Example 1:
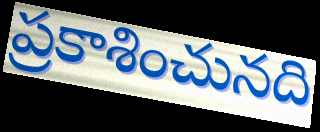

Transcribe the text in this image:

ప్రకాశించునది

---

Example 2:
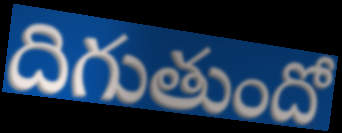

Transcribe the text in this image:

దిగుతుందో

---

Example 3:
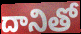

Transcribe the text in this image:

దానితో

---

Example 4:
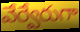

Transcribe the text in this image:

వేర్వేరుగా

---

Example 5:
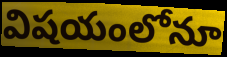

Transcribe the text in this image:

విషయంలోనూ